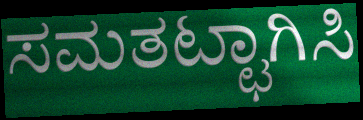
ಸಮತಟ್ಟಾಗಿಸಿ